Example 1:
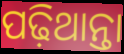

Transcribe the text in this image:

ପଢ଼ିଥାନ୍ତା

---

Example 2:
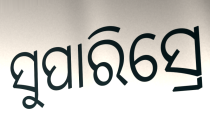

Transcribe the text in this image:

ସୁପାରିସ୍ରେ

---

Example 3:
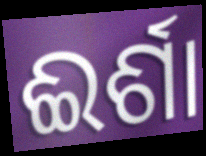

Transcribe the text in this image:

ଈର୍ଶା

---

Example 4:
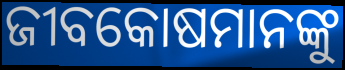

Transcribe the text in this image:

ଜୀବକୋଷମାନଙ୍କୁ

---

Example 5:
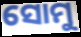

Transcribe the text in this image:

ସୋମୁ